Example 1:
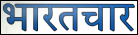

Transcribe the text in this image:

भारतचार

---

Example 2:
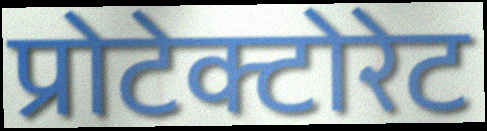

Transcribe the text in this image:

प्रोटेक्टोरेट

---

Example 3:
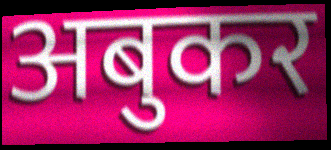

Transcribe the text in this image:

अबुकर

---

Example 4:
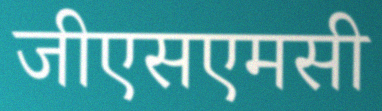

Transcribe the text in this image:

जीएसएमसी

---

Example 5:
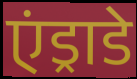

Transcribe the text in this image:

एंड्राडे